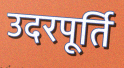
उदरपूर्ति